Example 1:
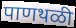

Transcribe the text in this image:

पाणथळी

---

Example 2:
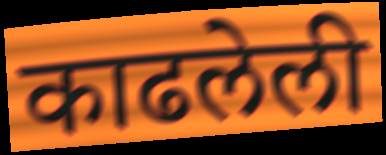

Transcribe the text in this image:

काढलेली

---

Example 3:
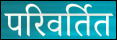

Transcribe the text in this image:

परिवर्तित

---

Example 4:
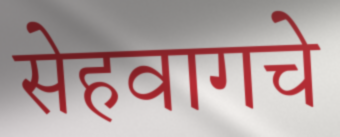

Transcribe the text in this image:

सेहवागचे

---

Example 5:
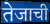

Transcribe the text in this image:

तेजाची